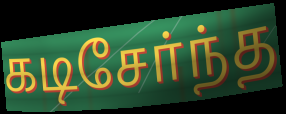
கடிசேர்ந்த